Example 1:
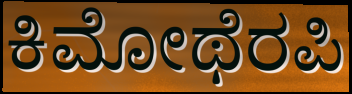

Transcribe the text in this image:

ಕಿಮೋಥೆರಪಿ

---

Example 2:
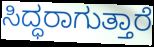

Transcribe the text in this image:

ಸಿದ್ಧರಾಗುತ್ತಾರೆ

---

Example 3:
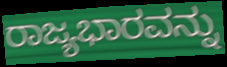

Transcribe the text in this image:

ರಾಜ್ಯಭಾರವನ್ನು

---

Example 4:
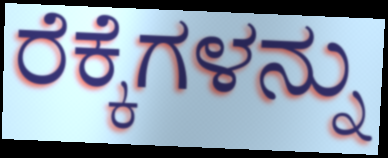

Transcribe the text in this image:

ರೆಕ್ಕೆಗಳನ್ನು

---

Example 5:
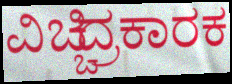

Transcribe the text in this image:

ವಿಚ್ಚಿದ್ರಕಾರಕ